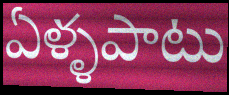
ఏళ్ళపాటు